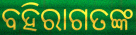
ବହିରାଗତଙ୍କ